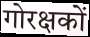
गोरक्षकों